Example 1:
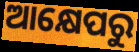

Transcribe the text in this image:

ଆକ୍ଷେପରୁ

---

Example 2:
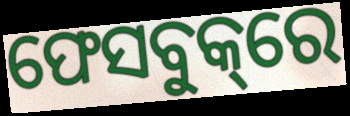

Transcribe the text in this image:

ଫେସବୁକ୍‌ରେ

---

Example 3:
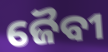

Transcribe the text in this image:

ଜୈବୀ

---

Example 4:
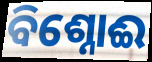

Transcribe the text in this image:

ବିଶ୍ନୋଈ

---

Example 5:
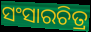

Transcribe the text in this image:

ସଂସାରଚିତ୍ର